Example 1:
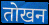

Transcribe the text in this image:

तोखन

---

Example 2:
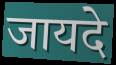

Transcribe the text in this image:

जायदे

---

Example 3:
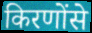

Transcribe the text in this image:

किरणोंसे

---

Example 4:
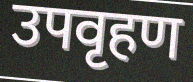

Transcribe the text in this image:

उपवृहण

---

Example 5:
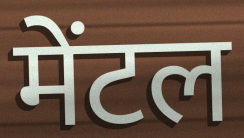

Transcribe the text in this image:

मेंटल